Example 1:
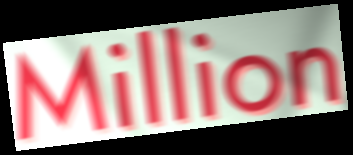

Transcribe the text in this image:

Million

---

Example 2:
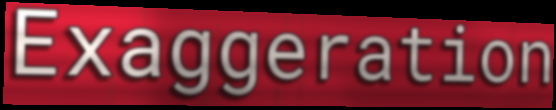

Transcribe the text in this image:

Exaggeration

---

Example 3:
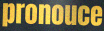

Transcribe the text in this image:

pronouce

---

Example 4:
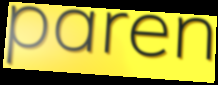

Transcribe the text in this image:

paren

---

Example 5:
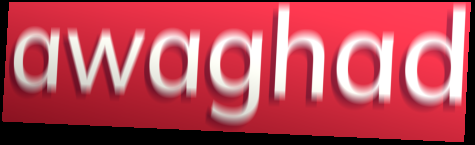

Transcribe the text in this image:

awaghad